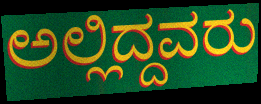
ಅಲ್ಲಿದ್ದವರು